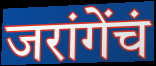
जरांगेंचं